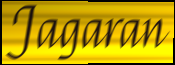
Jagaran